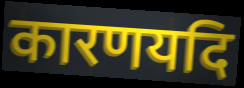
कारणयदि